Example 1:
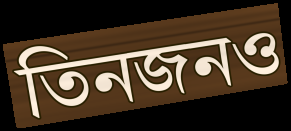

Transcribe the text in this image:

তিনজনও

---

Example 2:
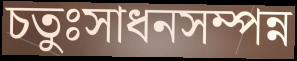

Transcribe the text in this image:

চতুঃসাধনসম্পন্ন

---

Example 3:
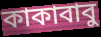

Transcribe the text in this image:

কাকাবাবু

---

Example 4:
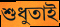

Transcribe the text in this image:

শুধুতাই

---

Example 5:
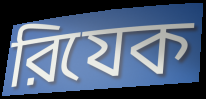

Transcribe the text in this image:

রিযেক